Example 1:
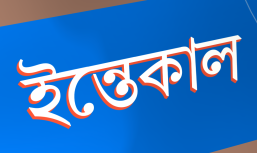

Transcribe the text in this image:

ইন্তেকাল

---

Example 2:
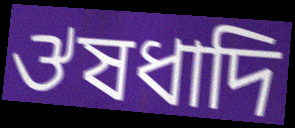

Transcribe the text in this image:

ঔষধাদি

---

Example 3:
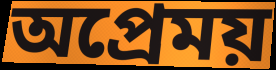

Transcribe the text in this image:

অপ্রেময়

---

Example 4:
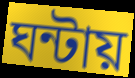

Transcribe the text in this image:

ঘন্টায়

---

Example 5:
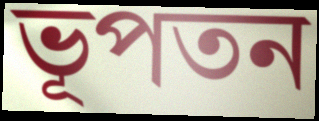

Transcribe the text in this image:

ভূপতন